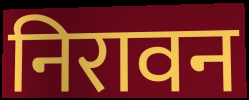
निरावन